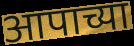
आपाच्या